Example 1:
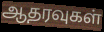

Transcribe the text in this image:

ஆதரவுகள்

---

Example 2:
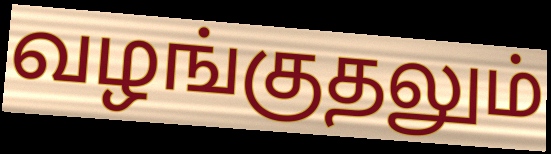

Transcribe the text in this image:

வழங்குதலும்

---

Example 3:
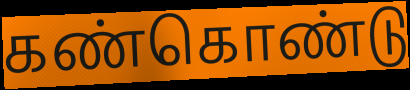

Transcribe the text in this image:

கண்கொண்டு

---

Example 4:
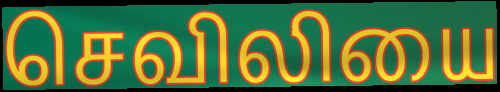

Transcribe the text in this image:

செவிலியை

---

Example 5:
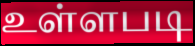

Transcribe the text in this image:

உள்ளபடி